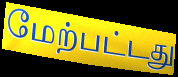
மேற்பட்டது